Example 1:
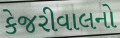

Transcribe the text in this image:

કેજરીવાલનો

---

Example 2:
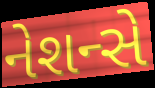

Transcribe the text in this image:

નેશન્સે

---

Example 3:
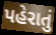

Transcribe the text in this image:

પહેરાતું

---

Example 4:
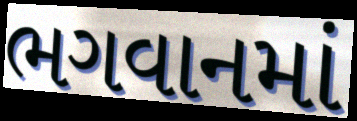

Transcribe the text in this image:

ભગવાનમાં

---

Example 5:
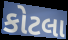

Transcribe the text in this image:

કોટલા